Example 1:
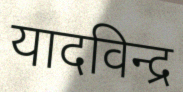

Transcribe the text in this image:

यादविन्द्र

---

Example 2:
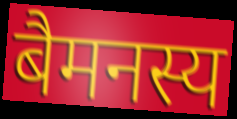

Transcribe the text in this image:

बैमनस्य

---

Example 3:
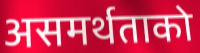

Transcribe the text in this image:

असमर्थताको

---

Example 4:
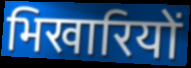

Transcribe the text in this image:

भिखारियों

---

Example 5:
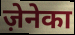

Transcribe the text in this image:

ज़ेनेका